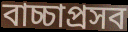
বাচ্চাপ্রসব